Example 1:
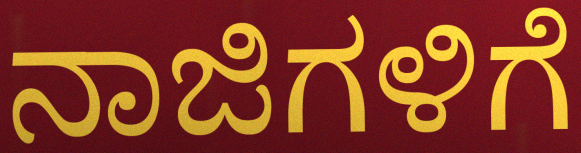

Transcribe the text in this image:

ನಾಜಿಗಳಿಗೆ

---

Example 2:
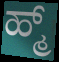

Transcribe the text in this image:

ಹ್ಮ್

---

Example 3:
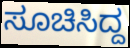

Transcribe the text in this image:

ಸೂಚಿಸಿದ್ದ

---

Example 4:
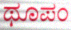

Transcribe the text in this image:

ಥೂಪಂ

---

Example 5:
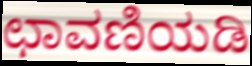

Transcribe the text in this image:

ಛಾವಣಿಯಡಿ